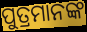
ପୁତ୍ରମାନଙ୍କ